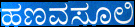
ಹಣವಸೂಲಿ